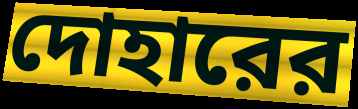
দোহারের